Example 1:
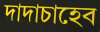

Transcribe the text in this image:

দাদাচাহেব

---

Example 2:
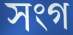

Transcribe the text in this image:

সংগ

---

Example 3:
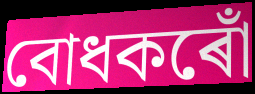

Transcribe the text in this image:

বোধকৰোঁ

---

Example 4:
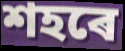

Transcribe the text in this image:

শহৰে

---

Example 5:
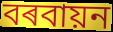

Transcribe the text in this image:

বৰবায়ন